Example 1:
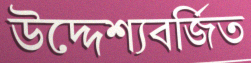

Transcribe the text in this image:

উদ্দেশ্যবর্জিত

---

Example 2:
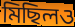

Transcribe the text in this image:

মিছিলও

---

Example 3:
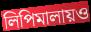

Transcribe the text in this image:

লিপিমালায়ও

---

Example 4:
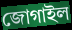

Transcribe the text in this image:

জোগাইল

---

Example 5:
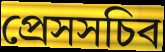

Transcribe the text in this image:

প্রেসসচিব